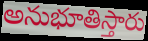
అనుభూతిస్తారు